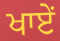
ਖਾਏਂ